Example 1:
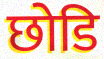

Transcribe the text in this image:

छोडि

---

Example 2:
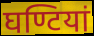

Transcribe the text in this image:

घण्टियां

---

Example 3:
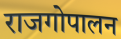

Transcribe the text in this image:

राजगोपालन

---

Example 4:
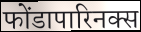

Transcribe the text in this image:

फोंडापारिनक्स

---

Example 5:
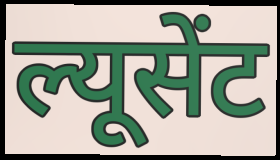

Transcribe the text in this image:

ल्यूसेंट